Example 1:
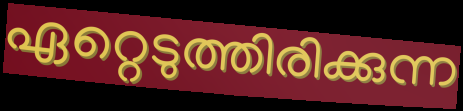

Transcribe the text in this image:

ഏറ്റെടുത്തിരിക്കുന്ന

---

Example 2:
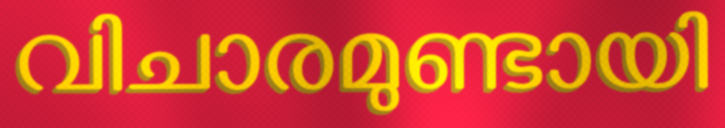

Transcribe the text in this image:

വിചാരമുണ്ടായി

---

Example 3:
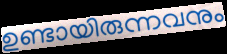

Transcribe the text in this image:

ഉണ്ടായിരുന്നവനും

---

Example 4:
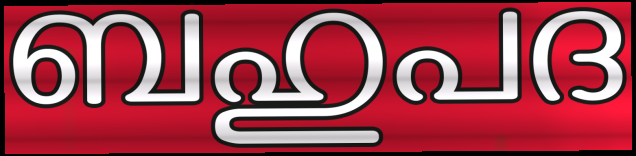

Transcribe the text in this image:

ബഹുപദ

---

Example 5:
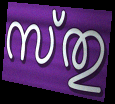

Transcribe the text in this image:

സ്‌തു